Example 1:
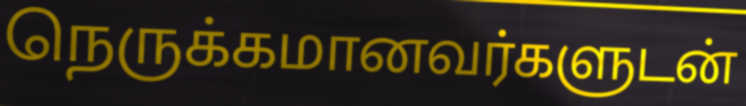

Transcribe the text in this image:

நெருக்கமானவர்களுடன்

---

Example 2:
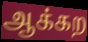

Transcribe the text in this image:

ஆக்கற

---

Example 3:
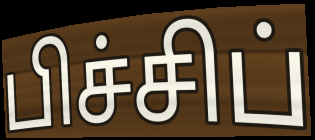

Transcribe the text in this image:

பிச்சிப்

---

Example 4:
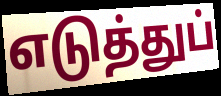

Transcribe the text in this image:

எடுத்துப்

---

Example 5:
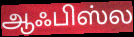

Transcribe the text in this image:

ஆஃபிஸ்ல